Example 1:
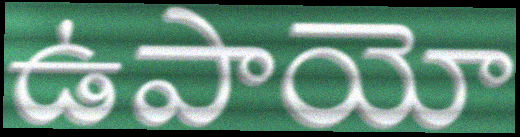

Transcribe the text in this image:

ఉపాయో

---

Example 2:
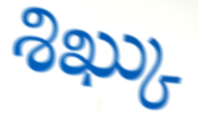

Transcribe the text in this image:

శిఖ్కు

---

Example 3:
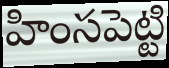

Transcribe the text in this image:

హింసపెట్టి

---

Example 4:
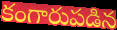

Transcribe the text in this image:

కంగారుపడిన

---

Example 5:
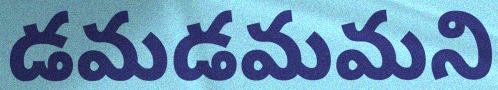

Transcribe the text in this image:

డమడమమని